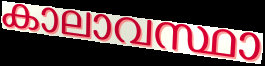
കാലാവസ്ഥാ